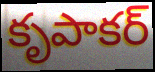
కృపాకర్